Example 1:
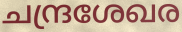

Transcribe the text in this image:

ചന്ദ്രശേഖര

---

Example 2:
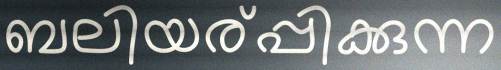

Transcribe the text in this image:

ബലിയര്പ്പിക്കുന്ന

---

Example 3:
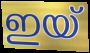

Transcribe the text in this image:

ഇയ്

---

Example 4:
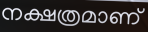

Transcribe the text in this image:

നക്ഷത്രമാണ്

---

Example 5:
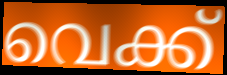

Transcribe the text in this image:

വെക്ക്